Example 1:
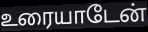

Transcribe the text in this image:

உரையாடேன்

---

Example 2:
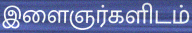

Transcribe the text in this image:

இளைஞர்களிடம்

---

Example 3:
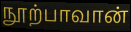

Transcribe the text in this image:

நூற்பாவான்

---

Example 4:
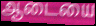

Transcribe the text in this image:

ஆடையை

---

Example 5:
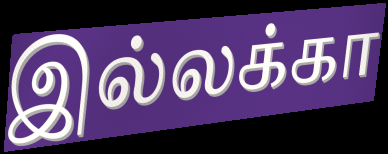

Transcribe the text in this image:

இல்லக்கா